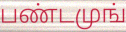
பண்டமுங்